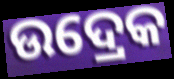
ଉଦ୍ରେକ